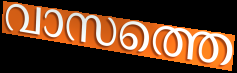
വാസത്തെ